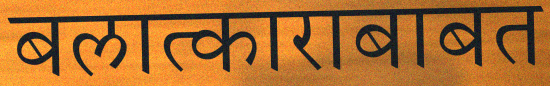
बलात्काराबाबत